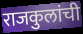
राजकुलांची